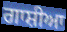
ਗਾਸ਼ੀਆ